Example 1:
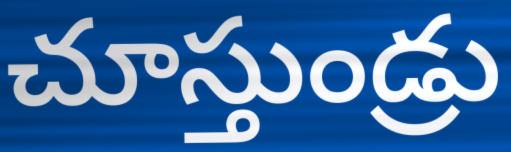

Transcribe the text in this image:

చూస్తుండ్రు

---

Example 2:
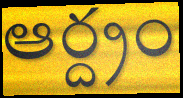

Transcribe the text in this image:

ఆర్ద్రం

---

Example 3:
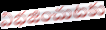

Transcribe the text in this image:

విభజించుటకు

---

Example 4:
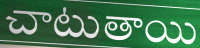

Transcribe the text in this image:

చాటుతాయి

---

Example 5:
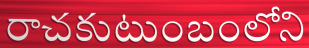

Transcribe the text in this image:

రాచకుటుంబంలోని